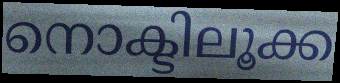
നൊക്ടിലൂക്ക